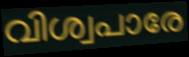
വിശ്വപാരേ